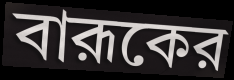
বারূকের